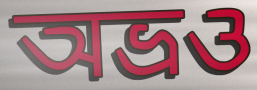
অভ্রও